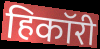
हिकॉरी